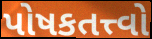
પોષકતત્ત્વો